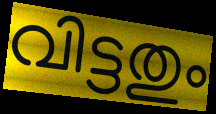
വിട്ടതും